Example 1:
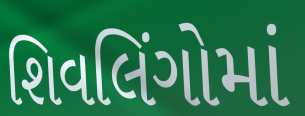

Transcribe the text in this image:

શિવલિંગોમાં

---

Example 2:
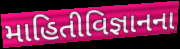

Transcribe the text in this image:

માહિતીવિજ્ઞાનના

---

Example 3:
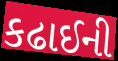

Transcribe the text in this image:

કઢાઈની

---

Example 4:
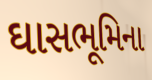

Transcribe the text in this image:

ઘાસભૂમિના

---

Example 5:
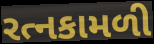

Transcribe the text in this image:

રત્નકામળી